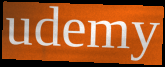
udemy